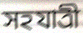
সহযাত্ৰী